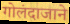
गोलंदाजाने